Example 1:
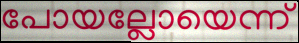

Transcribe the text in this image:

പോയല്ലോയെന്ന്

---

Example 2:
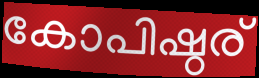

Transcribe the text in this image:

കോപിഷ്ഠര്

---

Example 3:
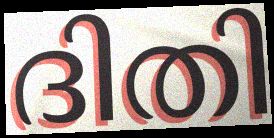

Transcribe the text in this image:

ദിതി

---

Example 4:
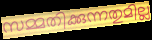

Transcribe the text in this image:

സമ്മതിക്കുന്നതുമില്ല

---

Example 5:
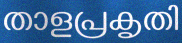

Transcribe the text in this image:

താളപ്രകൃതി